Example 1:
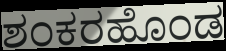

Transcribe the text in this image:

ಶಂಕರಹೊಂಡ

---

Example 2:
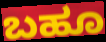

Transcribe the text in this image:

ಬಹೂ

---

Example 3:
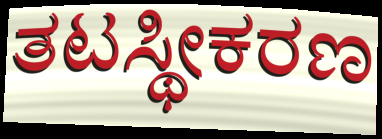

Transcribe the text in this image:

ತಟಸ್ಥೀಕರಣ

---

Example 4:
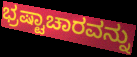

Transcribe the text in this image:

ಭ್ರಷ್ಟಾಚಾರವನ್ನು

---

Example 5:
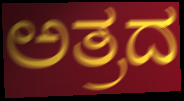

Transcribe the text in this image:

ಅತ್ರದ